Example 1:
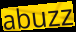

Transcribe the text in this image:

abuzz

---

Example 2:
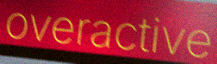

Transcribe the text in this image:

overactive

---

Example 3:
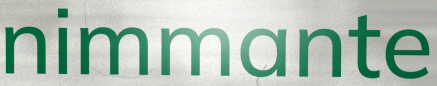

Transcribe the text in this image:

nimmante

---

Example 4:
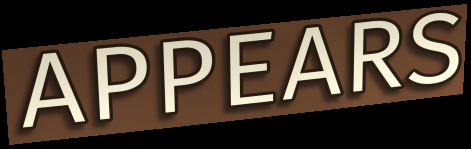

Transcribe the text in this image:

APPEARS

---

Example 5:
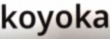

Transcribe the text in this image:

koyoka